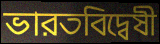
ভারতবিদ্বেষী